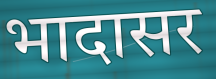
भादासर